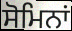
ਸੋਮਿਨਾਂ